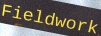
Fieldwork